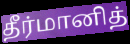
தீர்மானித்